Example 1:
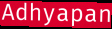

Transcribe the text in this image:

Adhyapan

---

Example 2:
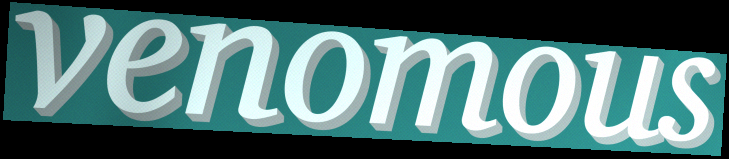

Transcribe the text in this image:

venomous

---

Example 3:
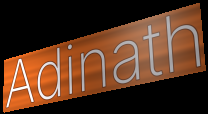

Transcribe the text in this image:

Adinath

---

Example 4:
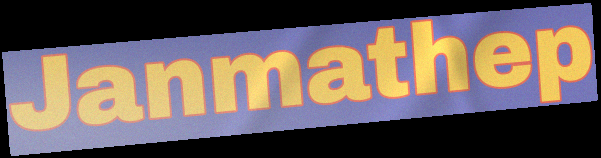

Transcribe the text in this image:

Janmathep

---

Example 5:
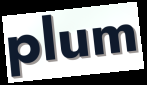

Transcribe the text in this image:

plum